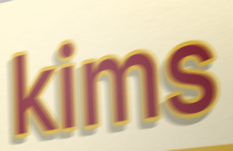
kims